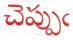
చెప్పుఁ